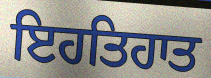
ਇਹਤਿਹਾਤ